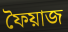
ফৈয়াজ